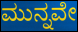
ಮುನ್ನವೇ